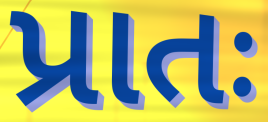
પ્રાતઃ